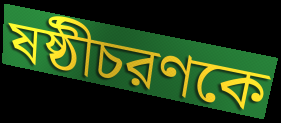
ষষ্ঠীচরণকে